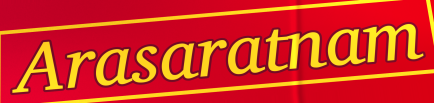
Arasaratnam